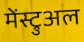
मेंस्ट्रुअल